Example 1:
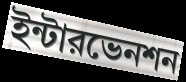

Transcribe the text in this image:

ইন্টারভেনশন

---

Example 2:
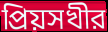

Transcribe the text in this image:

প্রিয়সখীর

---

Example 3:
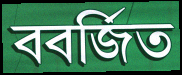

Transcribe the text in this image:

ববর্জিত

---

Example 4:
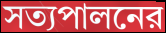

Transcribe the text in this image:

সত্যপালনের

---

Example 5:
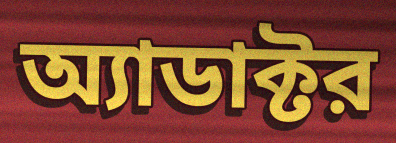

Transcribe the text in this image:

অ্যাডাক্টর